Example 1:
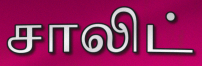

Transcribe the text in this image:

சாலிட்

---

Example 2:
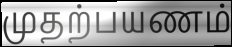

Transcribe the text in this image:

முதற்பயணம்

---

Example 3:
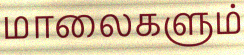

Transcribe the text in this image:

மாலைகளும்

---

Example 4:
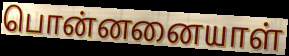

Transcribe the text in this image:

பொன்னனையாள்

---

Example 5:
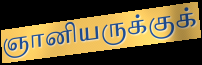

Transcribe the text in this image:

ஞானியருக்குக்